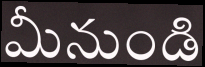
మీనుండి